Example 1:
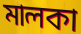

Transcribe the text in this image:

মালকা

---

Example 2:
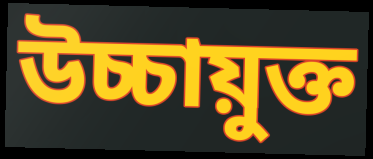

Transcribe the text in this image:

উচ্চায়ুক্ত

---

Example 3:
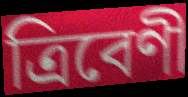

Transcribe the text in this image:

ত্ৰিবেণী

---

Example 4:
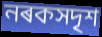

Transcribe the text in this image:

নৰকসদৃশ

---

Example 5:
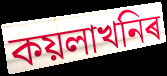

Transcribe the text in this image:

কয়লাখনিৰ